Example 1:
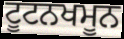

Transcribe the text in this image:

ਟੂਟਨਖਮੂਨ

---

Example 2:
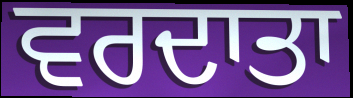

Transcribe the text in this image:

ਵਰਦਾਤਾ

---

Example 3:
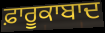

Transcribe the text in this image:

ਫ਼ਾਰੂਕਾਬਾਦ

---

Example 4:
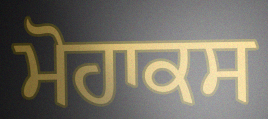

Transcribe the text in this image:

ਮੋਹਾਕਸ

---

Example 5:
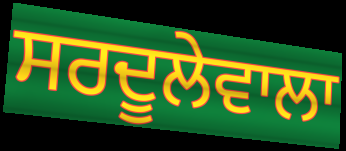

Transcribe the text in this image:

ਸਰਦੂਲੇਵਾਲਾ